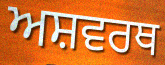
ਅਸ਼ਵਰਥ